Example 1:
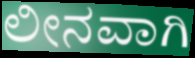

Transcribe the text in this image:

ಲೀನವಾಗಿ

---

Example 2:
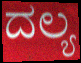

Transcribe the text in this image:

ದಲ್ಯ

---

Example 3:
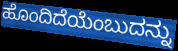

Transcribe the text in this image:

ಹೊಂದಿದೆಯೆಂಬುದನ್ನು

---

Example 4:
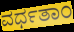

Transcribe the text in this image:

ವರ್ಧತಾಂ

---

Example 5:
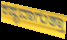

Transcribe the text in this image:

ಕಷ್ಟವಾಗುತ್ತಾ